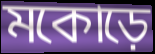
মকোড়ে